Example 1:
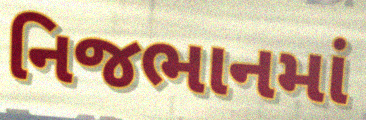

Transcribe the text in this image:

નિજભાનમાં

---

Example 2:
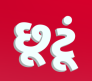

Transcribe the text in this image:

છૂટૂં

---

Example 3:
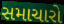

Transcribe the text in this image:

સમાચારો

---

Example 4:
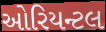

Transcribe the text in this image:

ઓરિયન્ટલ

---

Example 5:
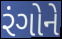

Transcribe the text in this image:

રંગોને